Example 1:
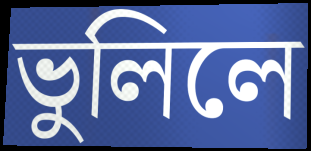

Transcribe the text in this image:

ভুলিলে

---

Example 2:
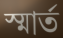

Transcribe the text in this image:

স্মার্ত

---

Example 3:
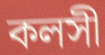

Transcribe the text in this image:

কলসী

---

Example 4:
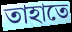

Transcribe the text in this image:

তাহাতে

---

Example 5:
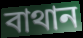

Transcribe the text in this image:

বাথান